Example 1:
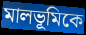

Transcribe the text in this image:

মালভূমিকে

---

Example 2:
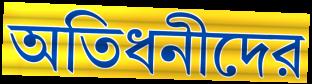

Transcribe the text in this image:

অতিধনীদের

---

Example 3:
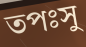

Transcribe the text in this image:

তপঃসু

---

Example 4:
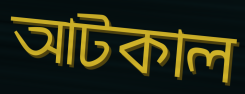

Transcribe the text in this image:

আটকাল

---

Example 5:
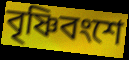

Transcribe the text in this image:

বৃষ্ণিবংশে